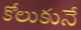
కోలుకునే